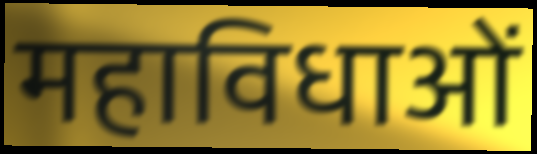
महाविधाओं